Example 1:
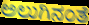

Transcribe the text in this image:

ಅಲುಗಿನಂತೆ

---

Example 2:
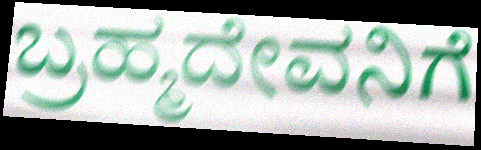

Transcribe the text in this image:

ಬ್ರಹ್ಮದೇವನಿಗೆ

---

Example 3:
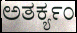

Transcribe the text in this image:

ಅತರ್ಕ್ಯಂ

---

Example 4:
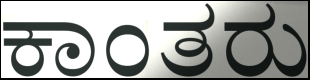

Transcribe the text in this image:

ಕಾಂತರು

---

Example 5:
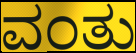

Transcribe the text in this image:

ವಂತು